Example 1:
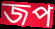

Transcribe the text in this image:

জপ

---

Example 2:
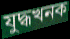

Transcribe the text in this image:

যুদ্ধখনক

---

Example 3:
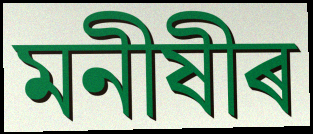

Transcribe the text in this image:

মনীষীৰ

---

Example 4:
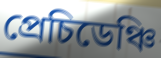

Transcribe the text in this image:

প্ৰেচিডেঞ্চি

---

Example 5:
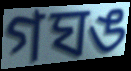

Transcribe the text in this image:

গঘঙ